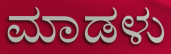
ಮಾಡಳು